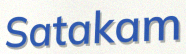
Satakam